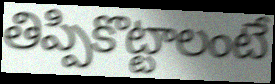
తిప్పికొట్టాలంటే